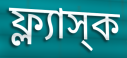
ফ্ল্যাস্‌ক